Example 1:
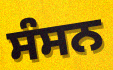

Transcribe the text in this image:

ਸੰਸਨ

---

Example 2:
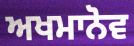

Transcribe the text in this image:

ਅਖਮਾਨੋਵ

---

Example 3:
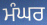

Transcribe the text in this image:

ਮੰਘਰ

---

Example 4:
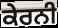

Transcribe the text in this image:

ਕੇਰਨੀ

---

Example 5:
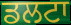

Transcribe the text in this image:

ਡਲਟਾ